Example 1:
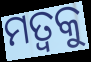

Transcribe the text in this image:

ମତ୍ୱକୁ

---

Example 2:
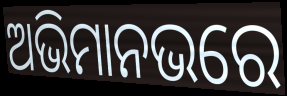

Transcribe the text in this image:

ଅଭିମାନଭରେ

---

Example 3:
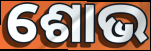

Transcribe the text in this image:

ଶୋଭ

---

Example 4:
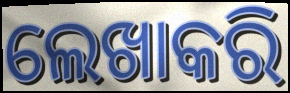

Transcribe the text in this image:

ଲେଖାକରି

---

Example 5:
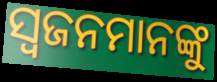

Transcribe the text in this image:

ସ୍ବଜନମାନଙ୍କୁ